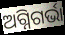
ଅଗ୍ନିଗର୍ଭା